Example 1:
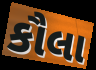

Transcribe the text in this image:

કૌલા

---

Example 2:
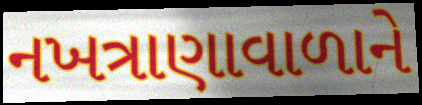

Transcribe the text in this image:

નખત્રાણાવાળાને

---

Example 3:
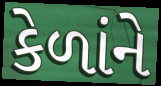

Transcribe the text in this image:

કેળાંને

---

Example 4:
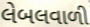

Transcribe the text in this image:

લેબલવાળી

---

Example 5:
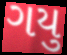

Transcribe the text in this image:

ગયુ